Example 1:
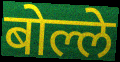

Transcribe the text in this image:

बोल्ले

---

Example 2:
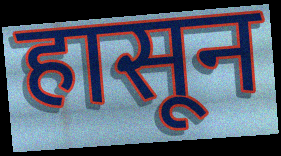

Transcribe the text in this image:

हासून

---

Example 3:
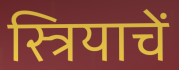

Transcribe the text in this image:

स्त्रियाचें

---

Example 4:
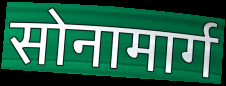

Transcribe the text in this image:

सोनामार्ग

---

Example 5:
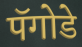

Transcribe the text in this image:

पॅगोडे